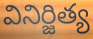
వినిర్జిత్య